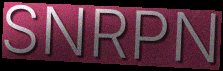
SNRPN